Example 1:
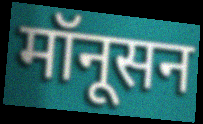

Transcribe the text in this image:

मॉनूसन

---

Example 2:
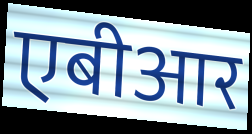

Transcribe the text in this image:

एबीआर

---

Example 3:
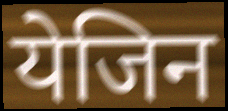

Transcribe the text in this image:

येजिन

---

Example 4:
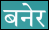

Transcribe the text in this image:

बनेर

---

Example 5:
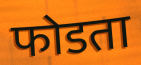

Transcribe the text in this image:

फोडता